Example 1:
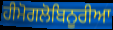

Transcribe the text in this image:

ਹੀਮੋਗਲੋਬਿਨੂਰੀਆ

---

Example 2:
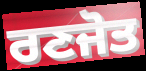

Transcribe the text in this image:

ਰਣਜੋਤ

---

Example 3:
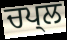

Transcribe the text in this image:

ਚਪ੍ਲ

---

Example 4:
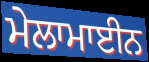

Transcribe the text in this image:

ਮੇਲਾਮਾਈਨ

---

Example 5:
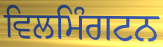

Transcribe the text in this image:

ਵਿਲਮਿੰਗਟਨ